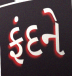
ફંદને